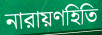
নারায়ণহিতি